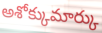
అశోక్కుమార్కు